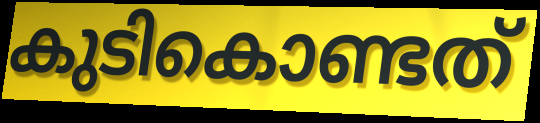
കുടികൊണ്ടത്